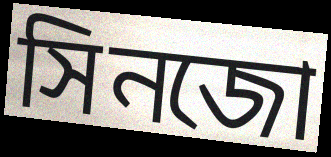
সিনজো